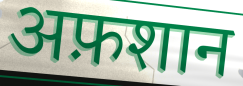
अफ़शान